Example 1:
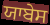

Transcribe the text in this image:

ਯਾਬੇਸ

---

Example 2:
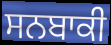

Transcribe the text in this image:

ਸਨਬਾਕੀ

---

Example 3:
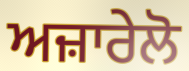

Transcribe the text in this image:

ਅਜ਼ਾਰੇਲੋ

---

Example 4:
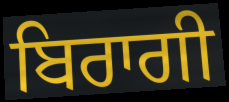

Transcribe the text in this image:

ਬਿਰਾਗੀ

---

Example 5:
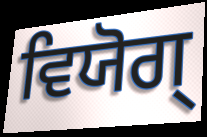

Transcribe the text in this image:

ਵਿਯੋਗ੍